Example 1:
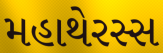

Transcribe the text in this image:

મહાથેરસ્સ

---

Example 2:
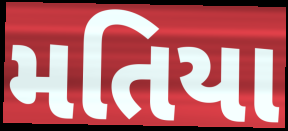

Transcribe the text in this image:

મતિયા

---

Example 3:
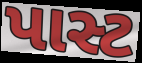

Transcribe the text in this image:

પાસ્ટ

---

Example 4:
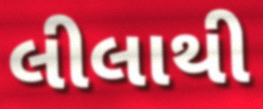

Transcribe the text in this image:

લીલાથી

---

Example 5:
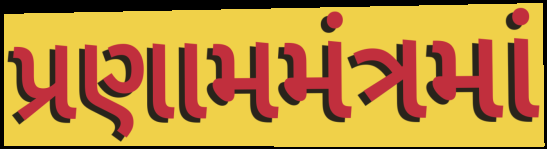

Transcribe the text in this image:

પ્રણામમંત્રમાં